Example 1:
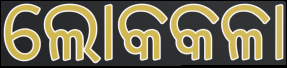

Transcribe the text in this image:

ଲୋକକଳା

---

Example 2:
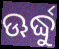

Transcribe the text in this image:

ଊର୍ଦ୍ଧୁ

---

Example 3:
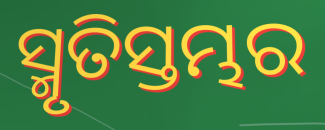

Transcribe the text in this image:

ସ୍ମୃତିସ୍ତମ୍ଭର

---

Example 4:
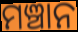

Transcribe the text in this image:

ମଞ୍ଚାନ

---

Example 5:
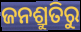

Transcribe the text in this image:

ଜନଶ୍ରୁତିରୁ